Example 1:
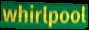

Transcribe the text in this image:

whirlpool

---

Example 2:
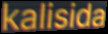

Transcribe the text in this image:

kalisida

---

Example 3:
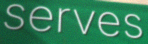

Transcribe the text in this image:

serves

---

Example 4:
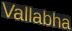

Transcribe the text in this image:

Vallabha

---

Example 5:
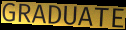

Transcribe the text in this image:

GRADUATE